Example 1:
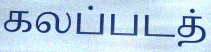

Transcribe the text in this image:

கலப்படத்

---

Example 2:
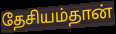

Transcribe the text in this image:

தேசியம்தான்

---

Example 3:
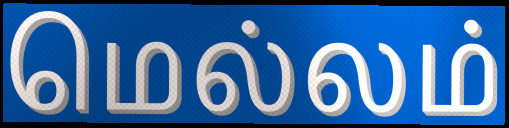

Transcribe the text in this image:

மெல்லம்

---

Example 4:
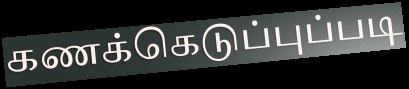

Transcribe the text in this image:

கணக்கெடுப்புப்படி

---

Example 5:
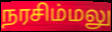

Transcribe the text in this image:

நரசிம்மலு